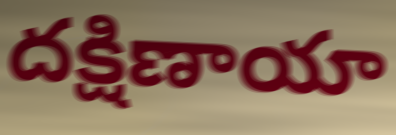
దక్షిణాయా